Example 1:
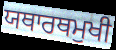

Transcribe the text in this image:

ਯਥਾਰਥਮੁਖੀ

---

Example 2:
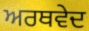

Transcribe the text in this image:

ਅਰਥਵੇਦ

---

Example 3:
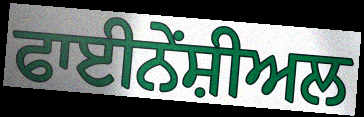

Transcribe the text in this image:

ਫਾਈਨੇਂਸ਼ੀਅਲ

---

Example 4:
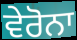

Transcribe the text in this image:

ਵੇਰੋਨਾ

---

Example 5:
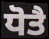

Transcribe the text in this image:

ਧੋਤੈ